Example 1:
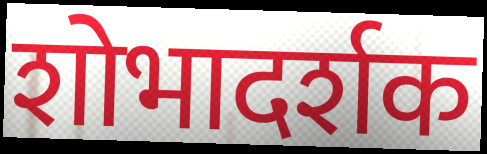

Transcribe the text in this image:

शोभादर्शक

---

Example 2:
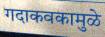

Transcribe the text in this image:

गदाकवकामुळे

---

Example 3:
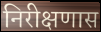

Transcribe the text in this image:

निरीक्षणास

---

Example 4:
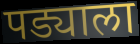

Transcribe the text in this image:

पड्याला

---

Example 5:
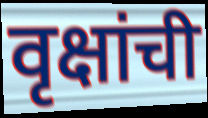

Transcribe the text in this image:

वृक्षांची